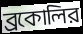
ব্রকোলির